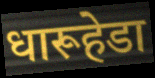
धारूहेडा